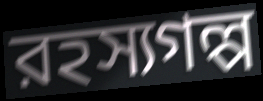
রহস্যগল্প